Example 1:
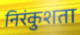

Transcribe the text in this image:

निरंकुशता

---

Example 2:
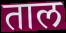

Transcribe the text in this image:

ताल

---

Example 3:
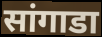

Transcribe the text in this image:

सांगाडा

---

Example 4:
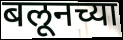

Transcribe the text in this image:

बलूनच्या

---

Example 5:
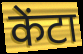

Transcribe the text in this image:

केंटा